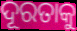
ଦୂରତାକୁ